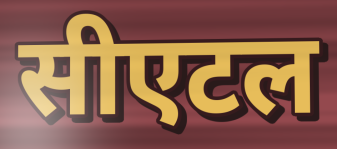
सीएटल